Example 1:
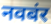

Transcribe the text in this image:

नवबंर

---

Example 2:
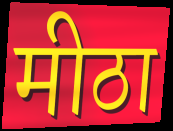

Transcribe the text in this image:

मीठा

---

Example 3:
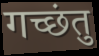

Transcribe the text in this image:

गच्छंतु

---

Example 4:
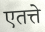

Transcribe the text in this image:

एतत्ते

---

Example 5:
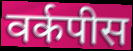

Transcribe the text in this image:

वर्कपीस